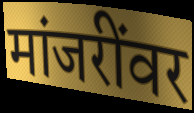
मांजरींवर